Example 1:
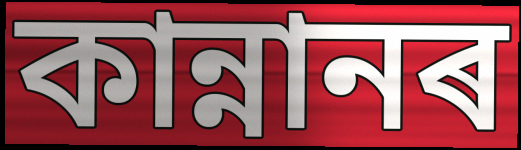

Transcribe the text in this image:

কান্নানৰ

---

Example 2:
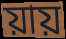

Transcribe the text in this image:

য়ায়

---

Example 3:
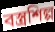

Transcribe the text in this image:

বস্ত্ৰশিল্প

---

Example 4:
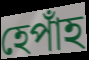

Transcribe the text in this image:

হেপাঁহ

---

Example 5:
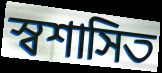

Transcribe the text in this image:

স্বশাসিত